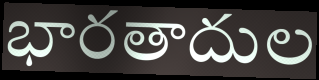
భారతాదుల